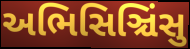
અભિસિઞ્ચિંસુ